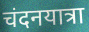
चंदनयात्रा